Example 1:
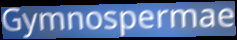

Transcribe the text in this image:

Gymnospermae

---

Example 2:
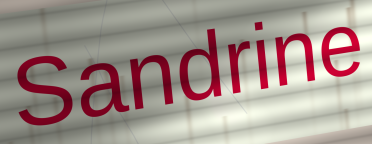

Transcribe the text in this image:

Sandrine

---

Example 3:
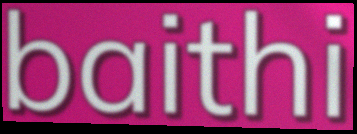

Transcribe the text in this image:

baithi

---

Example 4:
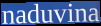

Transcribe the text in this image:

naduvina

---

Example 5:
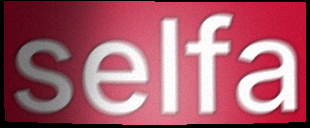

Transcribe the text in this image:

selfa